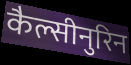
कैल्सीनुरिन